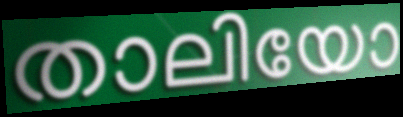
താലിയോ